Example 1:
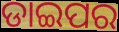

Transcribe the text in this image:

ଡାଇପର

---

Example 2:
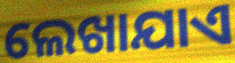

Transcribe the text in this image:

ଲେଖାଯାଏ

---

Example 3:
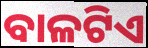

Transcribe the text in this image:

ବାଳଟିଏ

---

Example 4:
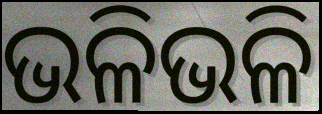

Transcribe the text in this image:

ଭଳିଭଳି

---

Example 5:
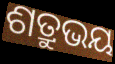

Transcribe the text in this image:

ଶତ୍ରୁଭୟ